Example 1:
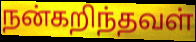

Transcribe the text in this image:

நன்கறிந்தவள்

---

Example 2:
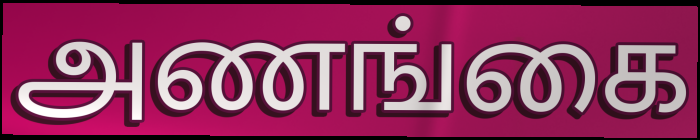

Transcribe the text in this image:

அணங்கை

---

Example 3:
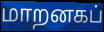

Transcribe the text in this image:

மாறனகப்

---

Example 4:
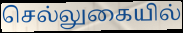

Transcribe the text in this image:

செல்லுகையில்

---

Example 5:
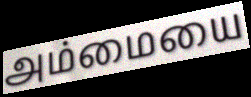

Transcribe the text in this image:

அம்மையை